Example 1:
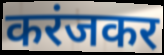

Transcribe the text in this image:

करंजकर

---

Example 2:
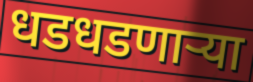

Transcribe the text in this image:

धडधडणाऱ्या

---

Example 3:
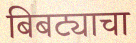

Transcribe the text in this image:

बिबट्याचा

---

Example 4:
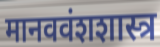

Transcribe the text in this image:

मानववंशशास्त्र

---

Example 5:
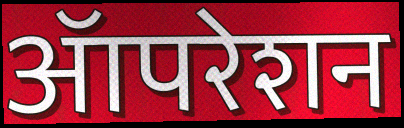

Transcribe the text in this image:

ॲापरेशन